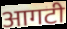
आगटी